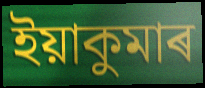
ইয়াকুমাৰ